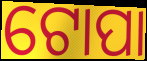
ଟୋପା